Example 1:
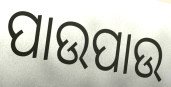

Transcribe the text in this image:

ପାଉପାଉ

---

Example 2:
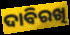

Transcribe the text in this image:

ଦାବିରଖି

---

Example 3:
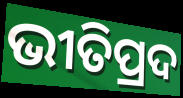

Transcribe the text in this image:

ଭୀତିପ୍ରଦ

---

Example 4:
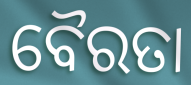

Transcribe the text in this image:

ବୈରତା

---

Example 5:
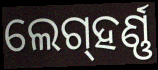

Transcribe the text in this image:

ଲେଗ୍‌ହର୍ଣ୍ଣ